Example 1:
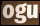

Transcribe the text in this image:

ogu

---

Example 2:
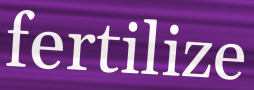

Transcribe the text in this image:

fertilize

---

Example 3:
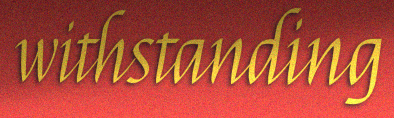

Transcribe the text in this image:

withstanding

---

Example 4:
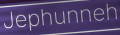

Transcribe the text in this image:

Jephunneh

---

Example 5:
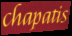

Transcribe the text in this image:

chapatis